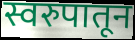
स्वरुपातून